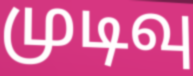
முடிவு